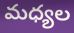
మధ్యల